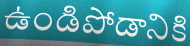
ఉండిపోడానికి